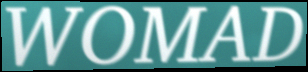
WOMAD